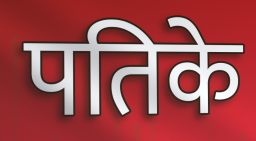
पतिके